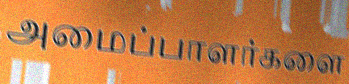
அமைப்பாளர்களை